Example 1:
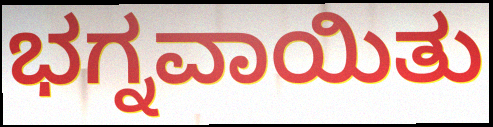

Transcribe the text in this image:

ಭಗ್ನವಾಯಿತು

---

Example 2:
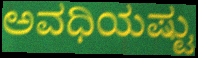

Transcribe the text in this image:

ಅವಧಿಯಷ್ಟು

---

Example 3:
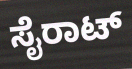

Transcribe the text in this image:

ಸೈರಾಟ್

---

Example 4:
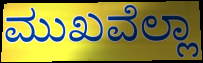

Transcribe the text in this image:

ಮುಖವೆಲ್ಲಾ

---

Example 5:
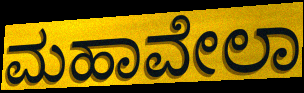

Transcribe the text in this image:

ಮಹಾವೇಲಾ